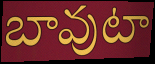
బావుటా